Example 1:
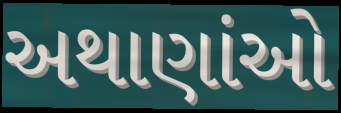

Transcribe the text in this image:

અથાણાંઓ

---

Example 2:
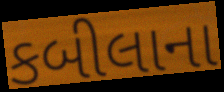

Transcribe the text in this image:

કબીલાના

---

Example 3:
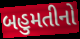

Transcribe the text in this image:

બહુમતીનો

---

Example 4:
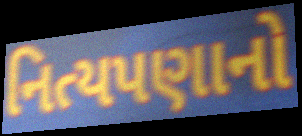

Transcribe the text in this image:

નિત્યપણાનો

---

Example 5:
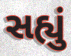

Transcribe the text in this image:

સહ્યું